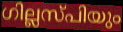
ഗില്ലസ്പിയും